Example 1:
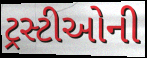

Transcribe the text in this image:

ટ્રસ્ટીઓની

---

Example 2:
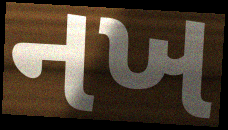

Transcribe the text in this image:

નખ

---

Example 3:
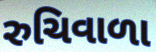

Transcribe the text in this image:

રુચિવાળા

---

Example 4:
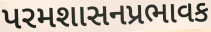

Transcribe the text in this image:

પરમશાસનપ્રભાવક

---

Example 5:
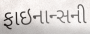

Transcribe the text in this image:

ફાઇનાન્સની